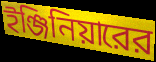
ইঞ্জিনিয়ারের